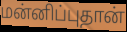
மன்னிப்புதான்